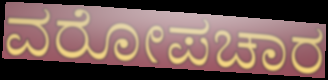
ವರೋಪಚಾರ